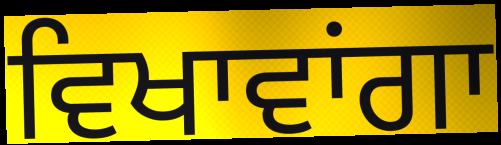
ਵਿਖਾਵਾਂਗਾ